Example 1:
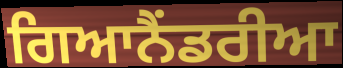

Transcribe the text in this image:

ਗਿਆਨੈਂਡਰੀਆ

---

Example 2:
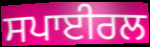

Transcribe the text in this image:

ਸਪਾਈਰਲ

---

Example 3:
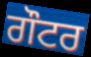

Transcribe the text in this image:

ਗੌਟਰ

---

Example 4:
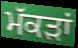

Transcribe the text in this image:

ਮੱਕੜਾਂ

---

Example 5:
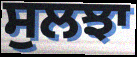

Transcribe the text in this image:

ਸੁਲਝਾ